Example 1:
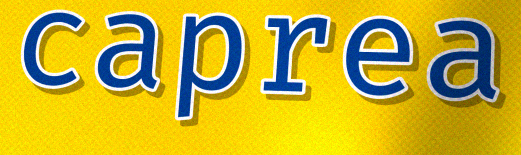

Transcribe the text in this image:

caprea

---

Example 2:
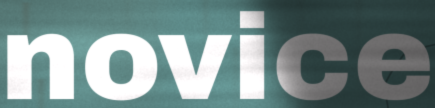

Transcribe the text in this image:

novice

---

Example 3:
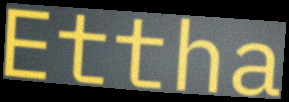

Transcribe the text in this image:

Ettha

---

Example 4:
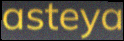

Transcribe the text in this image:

asteya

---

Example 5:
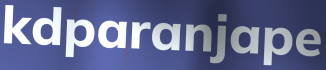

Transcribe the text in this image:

kdparanjape